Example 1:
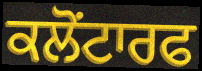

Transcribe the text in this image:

ਕਲੋਂਟਾਰਫ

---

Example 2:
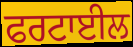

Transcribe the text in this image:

ਫਰਟਾਈਲ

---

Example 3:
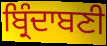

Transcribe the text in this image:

ਬ੍ਰਿੰਦਾਬਣੀ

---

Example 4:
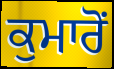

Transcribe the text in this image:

ਕੁਮਾਰੋਂ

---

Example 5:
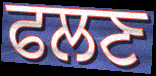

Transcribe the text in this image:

ਫਲਣ